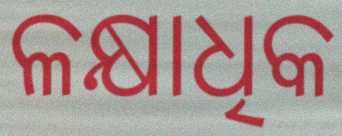
ଳକ୍ଷାଧିକ